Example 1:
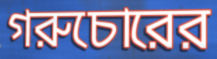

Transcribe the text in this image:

গরুচোরের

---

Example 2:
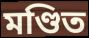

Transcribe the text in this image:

মণ্ডিত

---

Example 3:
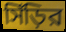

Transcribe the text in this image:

সিঁড়ির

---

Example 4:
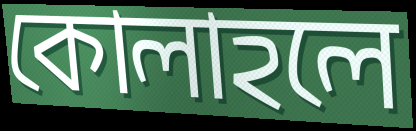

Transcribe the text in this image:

কোলাহলে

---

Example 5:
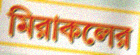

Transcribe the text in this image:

মিরাকলের